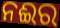
ନଈର